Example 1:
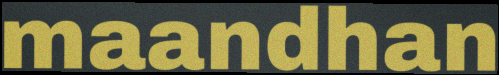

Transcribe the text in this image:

maandhan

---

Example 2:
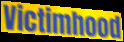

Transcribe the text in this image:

Victimhood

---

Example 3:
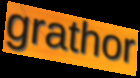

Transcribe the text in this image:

grathor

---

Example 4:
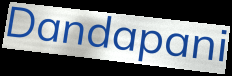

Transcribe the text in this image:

Dandapani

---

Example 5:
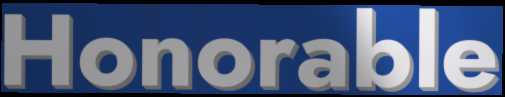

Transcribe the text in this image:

Honorable